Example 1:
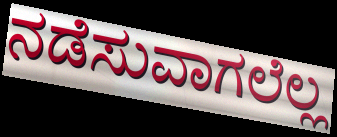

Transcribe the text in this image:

ನಡೆಸುವಾಗಲೆಲ್ಲ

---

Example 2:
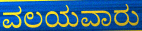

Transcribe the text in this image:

ವಲಯವಾರು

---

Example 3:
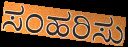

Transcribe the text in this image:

ಸಂಹರಿಸು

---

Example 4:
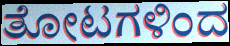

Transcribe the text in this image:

ತೋಟಗಳಿಂದ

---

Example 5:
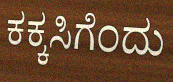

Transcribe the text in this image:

ಕಕ್ಕಸಿಗೆಂದು